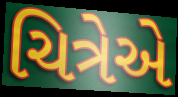
ચિત્રેએ